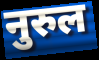
नुरुल